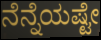
ನೆನ್ನೆಯಷ್ಟೇ